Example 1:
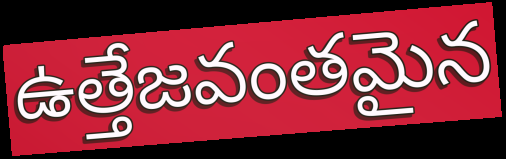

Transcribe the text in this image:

ఉత్తేజవంతమైన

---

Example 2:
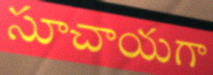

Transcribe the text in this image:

సూచాయగా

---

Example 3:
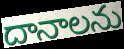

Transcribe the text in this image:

దానాలను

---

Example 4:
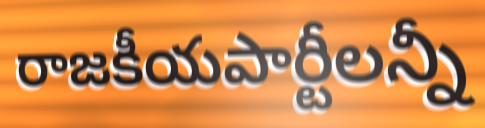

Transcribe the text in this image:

రాజకీయపార్టీలన్నీ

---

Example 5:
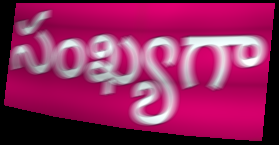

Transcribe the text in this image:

సంఖ్యగా